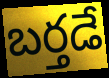
బర్తడే